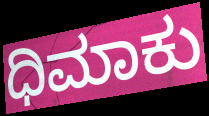
ಧಿಮಾಕು